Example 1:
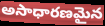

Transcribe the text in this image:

అసాధారణమైన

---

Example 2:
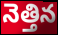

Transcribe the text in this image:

నెత్తిన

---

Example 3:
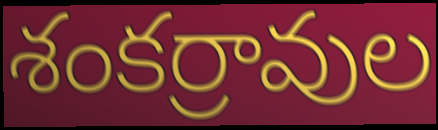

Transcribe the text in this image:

శంకర్రావుల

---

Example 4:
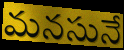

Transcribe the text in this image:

మనసునే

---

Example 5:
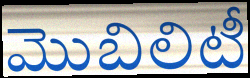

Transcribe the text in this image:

మొబిలిటీ